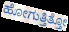
ಹೋಗುತ್ತಿತ್ತೋ